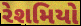
રેશમિયો